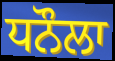
ਧਨੌਲਾ